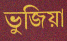
ভুজিয়া